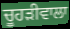
ਚੂਹੜੀਵਾਲਾ